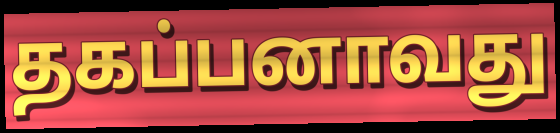
தகப்பனாவது